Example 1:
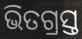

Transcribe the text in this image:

ଭିତଗ୍ରସ୍ତ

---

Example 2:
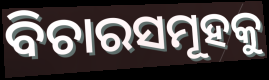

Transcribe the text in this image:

ବିଚାରସମୂହକୁ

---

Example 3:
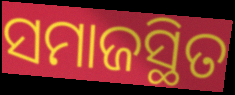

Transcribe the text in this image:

ସମାଜସ୍ଥିତ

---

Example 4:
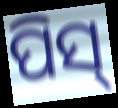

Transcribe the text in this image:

ପିସ୍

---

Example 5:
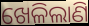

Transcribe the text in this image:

ଖେଳିଲାଣି